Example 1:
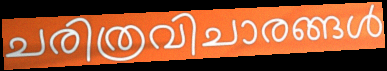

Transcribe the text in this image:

ചരിത്രവിചാരങ്ങൾ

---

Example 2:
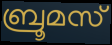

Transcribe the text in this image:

ബ്രൂമസ്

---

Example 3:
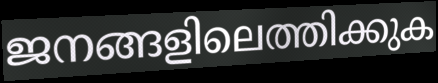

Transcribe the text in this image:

ജനങ്ങളിലെത്തിക്കുക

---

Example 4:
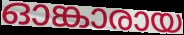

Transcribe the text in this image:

ഓങ്കാരായ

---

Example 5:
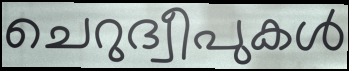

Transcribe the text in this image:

ചെറുദ്വീപുകൾ